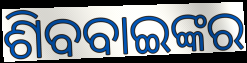
ଶିବବାଇଙ୍କର